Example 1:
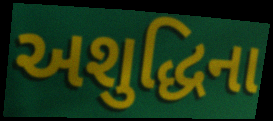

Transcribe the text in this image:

અશુદ્ધિના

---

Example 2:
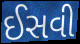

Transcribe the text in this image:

ઈસવી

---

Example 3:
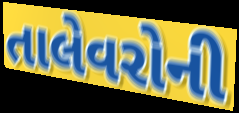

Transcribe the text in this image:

તાલેવરોની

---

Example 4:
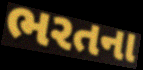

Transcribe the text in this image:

ભરતના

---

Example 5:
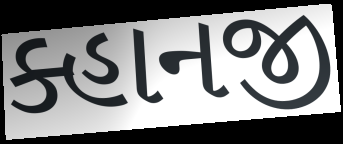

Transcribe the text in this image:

ક્હાનજી